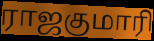
ராஜகுமாரி